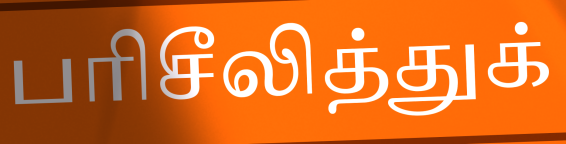
பரிசீலித்துக்